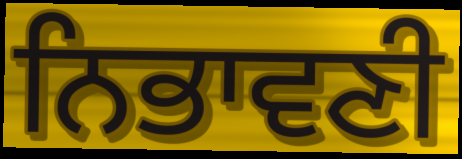
ਨਿਭਾਵਣੀ